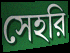
সেহরি